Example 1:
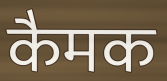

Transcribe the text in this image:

कैमक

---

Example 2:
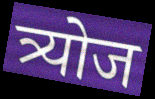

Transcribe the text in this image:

त्र्योज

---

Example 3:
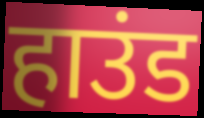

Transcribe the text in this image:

हाउंड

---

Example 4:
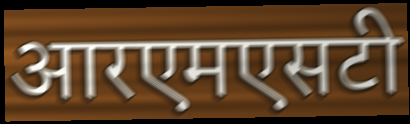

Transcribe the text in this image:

आरएमएसटी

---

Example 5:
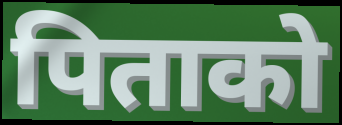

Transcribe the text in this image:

पिताको